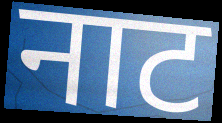
नाट